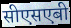
सीएसएबी